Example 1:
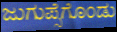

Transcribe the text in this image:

ಜುಗುಪ್ಸೆಗೊಂಡು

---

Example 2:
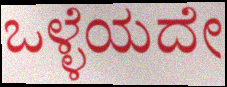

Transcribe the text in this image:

ಒಳ್ಳೆಯದೇ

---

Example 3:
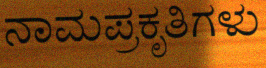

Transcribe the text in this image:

ನಾಮಪ್ರಕೃತಿಗಳು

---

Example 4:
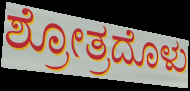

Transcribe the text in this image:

ಶ್ರೋತ್ರದೊಳು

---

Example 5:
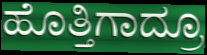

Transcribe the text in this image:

ಹೊತ್ತಿಗಾದ್ರೂ